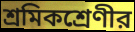
শ্রমিকশ্রেণীর